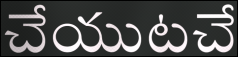
చేయుటచే